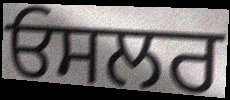
ਓਸਲਰ